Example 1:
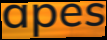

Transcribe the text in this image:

apes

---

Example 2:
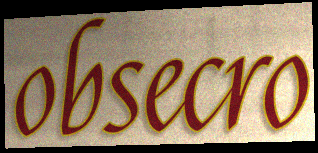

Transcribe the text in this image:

obsecro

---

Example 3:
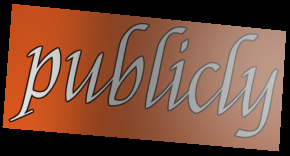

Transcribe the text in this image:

publicly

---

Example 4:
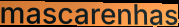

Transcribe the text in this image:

mascarenhas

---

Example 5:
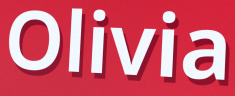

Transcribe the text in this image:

Olivia